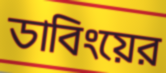
ডাবিংয়ের